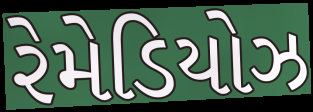
રેમેડિયોઝ